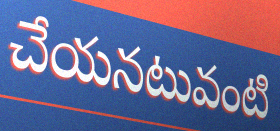
చేయనటువంటి